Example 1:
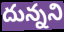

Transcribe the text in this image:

దున్నని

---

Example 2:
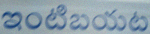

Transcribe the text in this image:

ఇంటిబయట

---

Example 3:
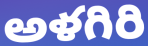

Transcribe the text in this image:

అళగిరి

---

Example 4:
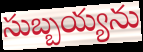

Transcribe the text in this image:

సుబ్బయ్యను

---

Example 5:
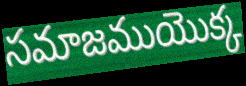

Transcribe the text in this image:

సమాజముయొక్క